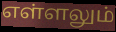
எள்ளலும்